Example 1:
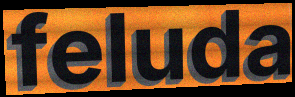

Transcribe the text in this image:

feluda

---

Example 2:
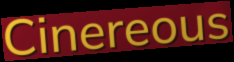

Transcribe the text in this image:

Cinereous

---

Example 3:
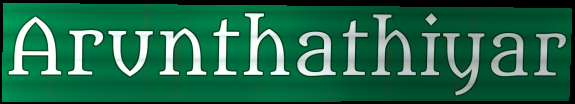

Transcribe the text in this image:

Arunthathiyar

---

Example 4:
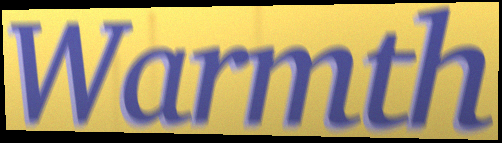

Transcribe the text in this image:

Warmth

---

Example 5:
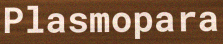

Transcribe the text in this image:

Plasmopara